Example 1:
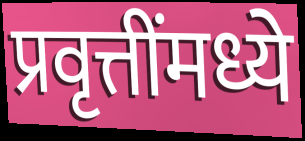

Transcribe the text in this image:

प्रवृत्तींमध्ये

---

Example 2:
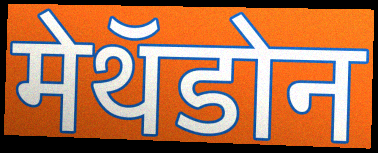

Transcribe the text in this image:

मेथॅडोन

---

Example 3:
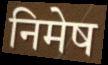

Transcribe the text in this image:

निमेष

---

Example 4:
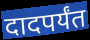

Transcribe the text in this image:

दादपर्यंत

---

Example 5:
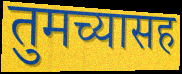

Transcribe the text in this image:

तुमच्यासह